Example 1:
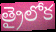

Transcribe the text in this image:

త్రైలోక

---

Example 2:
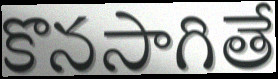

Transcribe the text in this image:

కొనసాగితే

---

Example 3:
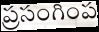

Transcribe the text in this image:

ప్రసంగింప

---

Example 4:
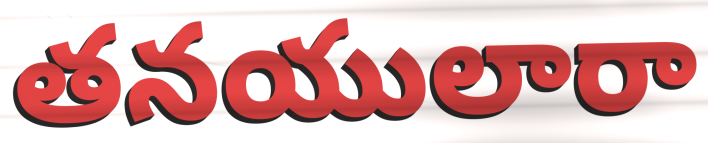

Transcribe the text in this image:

తనయులారా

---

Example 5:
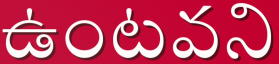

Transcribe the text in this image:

ఉంటవని